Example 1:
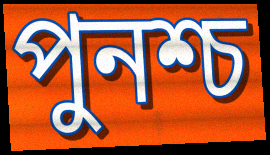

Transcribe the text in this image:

পুনশ্চ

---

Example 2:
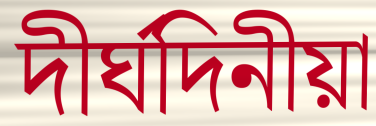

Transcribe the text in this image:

দীৰ্ঘদিনীয়া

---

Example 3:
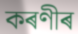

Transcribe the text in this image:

কৰণীৰ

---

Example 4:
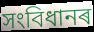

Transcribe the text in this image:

সংবিধানৰ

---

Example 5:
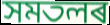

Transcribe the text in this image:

সমতলৰ